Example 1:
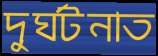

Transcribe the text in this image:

দুৰ্ঘটনাত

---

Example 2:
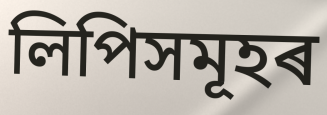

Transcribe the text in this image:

লিপিসমূহৰ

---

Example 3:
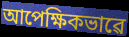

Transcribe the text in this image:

আপেক্ষিকভাৱে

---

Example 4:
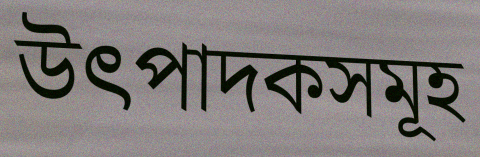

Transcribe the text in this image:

উৎপাদকসমূহ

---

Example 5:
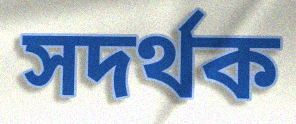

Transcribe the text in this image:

সদৰ্থক